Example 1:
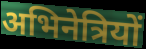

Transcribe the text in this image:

अभिनेत्रियों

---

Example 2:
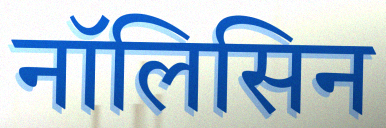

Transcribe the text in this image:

नॉलिसिन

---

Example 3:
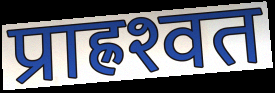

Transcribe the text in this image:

प्राह्रश्वत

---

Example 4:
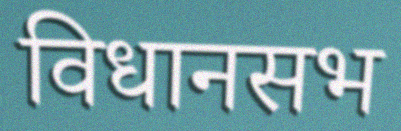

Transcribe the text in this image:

विधानसभ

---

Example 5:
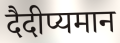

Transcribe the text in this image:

दैदीप्यमान